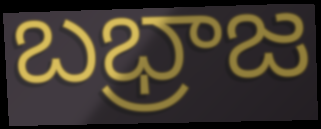
బభ్రాజ